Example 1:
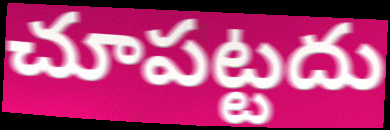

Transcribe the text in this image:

చూపట్టదు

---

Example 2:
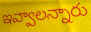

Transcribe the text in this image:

ఇవ్వాలన్నారు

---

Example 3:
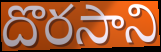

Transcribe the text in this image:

దొరసాని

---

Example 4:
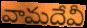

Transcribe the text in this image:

వామదేవీ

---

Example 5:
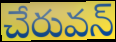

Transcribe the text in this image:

చేరువన్